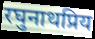
रघुनाथप्रिय